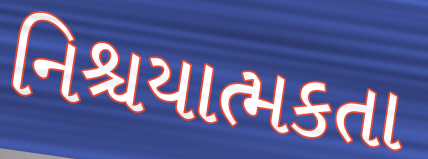
નિશ્ચયાત્મકતા